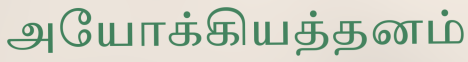
அயோக்கியத்தனம்